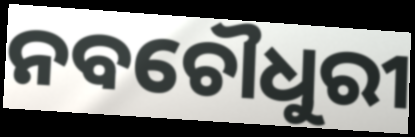
ନବଚୌଧୁରୀ